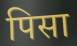
पिसा